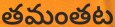
తమంతట